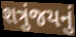
શત્રુંજયનું